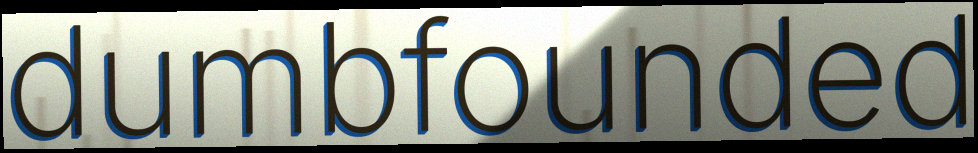
dumbfounded